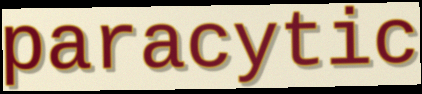
paracytic